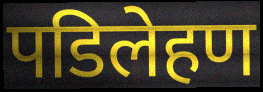
पडिलेहण